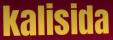
kalisida